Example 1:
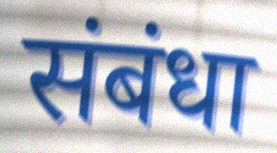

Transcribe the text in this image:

संबंधा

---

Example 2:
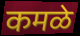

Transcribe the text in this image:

कमळे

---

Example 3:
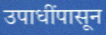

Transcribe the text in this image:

उपाधींपासून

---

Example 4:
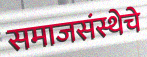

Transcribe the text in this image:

समाजसंस्थेचे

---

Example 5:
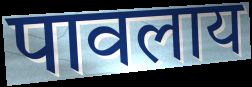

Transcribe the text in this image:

पावलाय